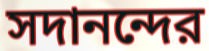
সদানন্দের